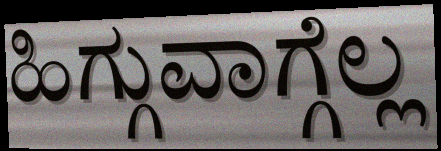
ಹಿಗ್ಗುವಾಗ್ಗೆಲ್ಲ